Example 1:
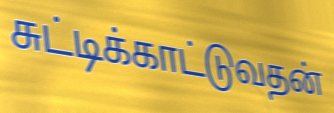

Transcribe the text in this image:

சுட்டிக்காட்டுவதன்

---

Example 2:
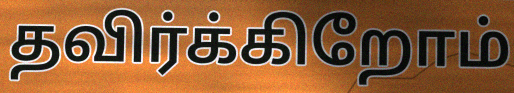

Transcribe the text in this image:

தவிர்க்கிறோம்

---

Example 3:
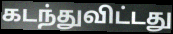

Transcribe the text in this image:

கடந்துவிட்டது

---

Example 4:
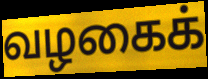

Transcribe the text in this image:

வழகைக்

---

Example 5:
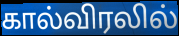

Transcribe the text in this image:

கால்விரலில்